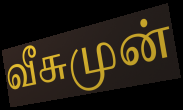
வீசுமுன்